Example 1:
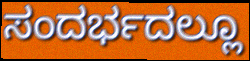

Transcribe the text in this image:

ಸಂದರ್ಭದಲ್ಲೂ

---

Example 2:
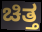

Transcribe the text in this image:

ಚಿತ್ತ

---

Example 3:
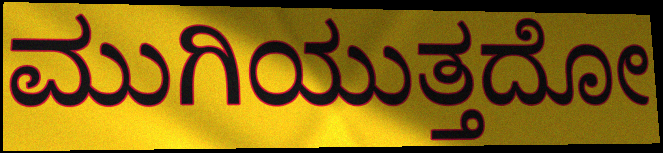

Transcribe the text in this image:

ಮುಗಿಯುತ್ತದೋ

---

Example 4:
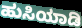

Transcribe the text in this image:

ಹುಸಿಯಾಡಿ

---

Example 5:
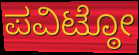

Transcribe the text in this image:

ಪವಿಟ್ಠೋ